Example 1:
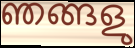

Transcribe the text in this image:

ഞങ്ങളു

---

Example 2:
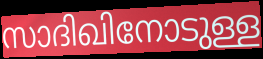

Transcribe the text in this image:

സാദിഖിനോടുള്ള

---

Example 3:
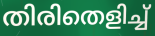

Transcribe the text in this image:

തിരിതെളിച്ച്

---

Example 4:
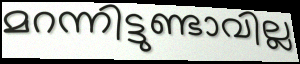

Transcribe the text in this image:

മറന്നിട്ടുണ്ടാവില്ല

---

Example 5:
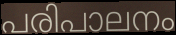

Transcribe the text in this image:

പരിപാലനം